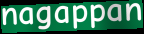
nagappan